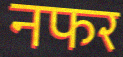
नफर